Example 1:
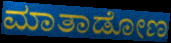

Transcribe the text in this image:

ಮಾತಾಡೋಣ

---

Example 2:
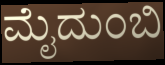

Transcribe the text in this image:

ಮೈದುಂಬಿ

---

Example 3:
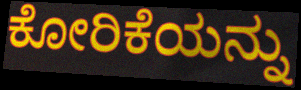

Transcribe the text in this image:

ಕೋರಿಕೆಯನ್ನು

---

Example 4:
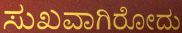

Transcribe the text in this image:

ಸುಖವಾಗಿರೋದು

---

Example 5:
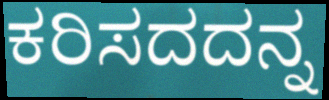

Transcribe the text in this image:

ಕರಿಸದದನ್ನ